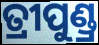
ତ୍ରୀପୁଣ୍ଡ୍ର